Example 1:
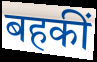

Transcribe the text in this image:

बहकीं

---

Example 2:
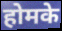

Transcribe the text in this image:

होमके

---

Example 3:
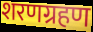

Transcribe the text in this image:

शरणग्रहण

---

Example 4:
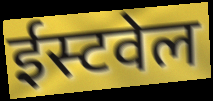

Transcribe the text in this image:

ईस्टवेल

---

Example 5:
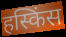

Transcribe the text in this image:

हस्किंस